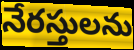
నేరస్తులను